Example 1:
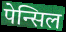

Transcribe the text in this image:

पेन्सिल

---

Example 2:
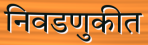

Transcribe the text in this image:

निवडणुकीत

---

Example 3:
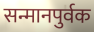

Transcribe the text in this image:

सन्मानपुर्वक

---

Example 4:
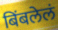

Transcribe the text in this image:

बिंबलेलं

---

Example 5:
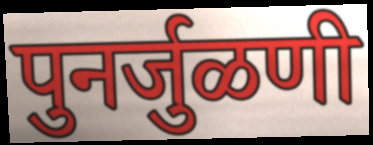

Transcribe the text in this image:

पुनर्जुळणी